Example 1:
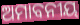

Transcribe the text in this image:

ଅମାବନୀୟ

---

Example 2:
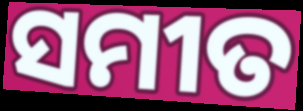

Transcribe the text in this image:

ସମୀତ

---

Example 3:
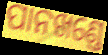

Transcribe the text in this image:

ପାନଖଣ୍ଡେ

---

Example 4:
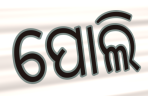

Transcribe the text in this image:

ପୋଲି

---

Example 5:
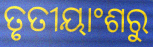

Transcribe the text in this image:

ତୃତୀୟାଂଶରୁ